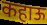
कहाऊ